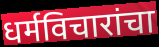
धर्मविचारांचा